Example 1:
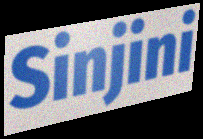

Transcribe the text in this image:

Sinjini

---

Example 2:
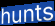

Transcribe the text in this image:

hunts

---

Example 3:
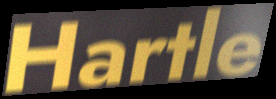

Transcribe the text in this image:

Hartle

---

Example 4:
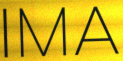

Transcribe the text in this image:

IMA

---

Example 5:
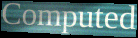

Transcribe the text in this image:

Computed